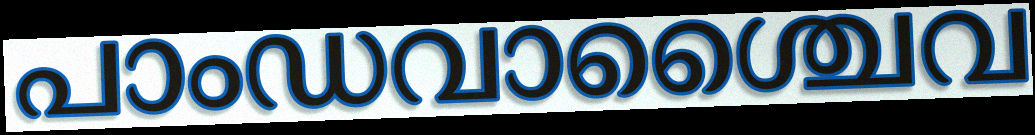
പാംഡവാശ്ചൈവ